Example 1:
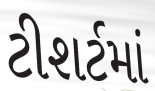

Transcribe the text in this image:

ટીશર્ટમાં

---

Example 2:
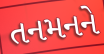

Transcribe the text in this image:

તનમનને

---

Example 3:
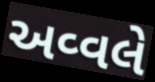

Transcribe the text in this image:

અવ્વલે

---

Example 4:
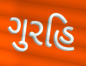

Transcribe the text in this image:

ગુરહિ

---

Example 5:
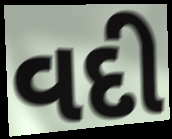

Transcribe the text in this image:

વદી